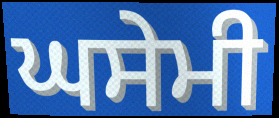
ਘਸੇਮੀ